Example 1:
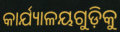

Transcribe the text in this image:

କାର୍ଯ୍ୟାଳୟଗୁଡ଼ିକୁ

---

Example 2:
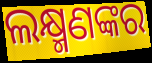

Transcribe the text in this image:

ଲକ୍ଷ୍ମଣଙ୍କର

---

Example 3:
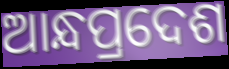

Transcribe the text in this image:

ଆନ୍ଧପ୍ରଦେଶ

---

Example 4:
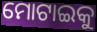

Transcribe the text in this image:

ମୋଟାଇକୁ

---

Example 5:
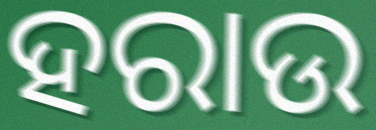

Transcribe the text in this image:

ହରାଉ